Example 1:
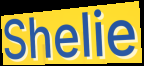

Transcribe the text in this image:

Shelie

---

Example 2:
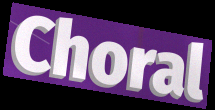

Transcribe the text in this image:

Choral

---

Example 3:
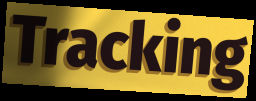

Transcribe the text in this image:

Tracking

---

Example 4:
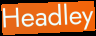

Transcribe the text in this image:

Headley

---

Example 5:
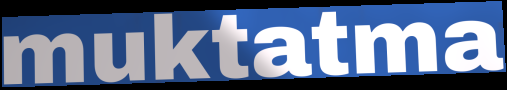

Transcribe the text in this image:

muktatma